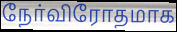
நேர்விரோதமாக